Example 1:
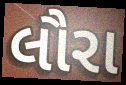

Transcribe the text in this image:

લૌરા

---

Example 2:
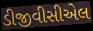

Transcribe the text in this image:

ડીજીવીસીએલ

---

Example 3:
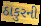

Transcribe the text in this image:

ઠાકુરની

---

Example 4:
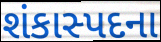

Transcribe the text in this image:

શંકાસ્પદના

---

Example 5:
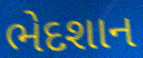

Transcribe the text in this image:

ભેદશાન